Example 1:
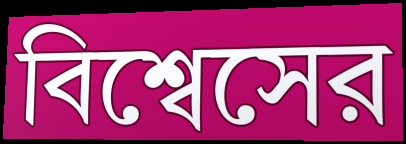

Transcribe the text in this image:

বিশ্বেসের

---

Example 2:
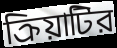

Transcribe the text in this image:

ক্রিয়াটির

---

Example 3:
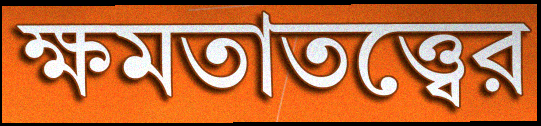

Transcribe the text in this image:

ক্ষমতাতত্ত্বের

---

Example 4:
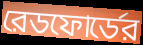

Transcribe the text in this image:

রেডফোর্ডের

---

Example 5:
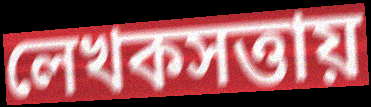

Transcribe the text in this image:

লেখকসত্তায়